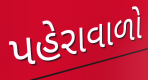
પહેરાવાળો